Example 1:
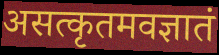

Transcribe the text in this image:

असत्कृतमवज्ञातं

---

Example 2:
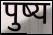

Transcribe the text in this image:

पुष्य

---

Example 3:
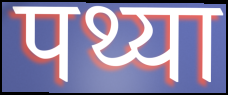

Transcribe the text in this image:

पथ्या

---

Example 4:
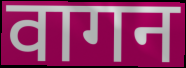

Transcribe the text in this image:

वागन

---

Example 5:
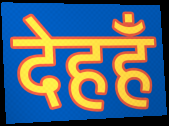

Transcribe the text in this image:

देहहँ